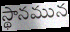
స్థానమున